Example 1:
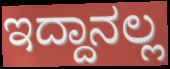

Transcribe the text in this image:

ಇದ್ದಾನಲ್ಲ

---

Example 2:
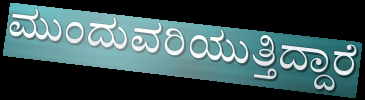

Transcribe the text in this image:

ಮುಂದುವರಿಯುತ್ತಿದ್ದಾರೆ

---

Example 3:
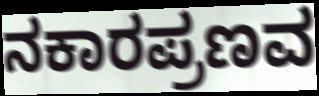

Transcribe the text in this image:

ನಕಾರಪ್ರಣವ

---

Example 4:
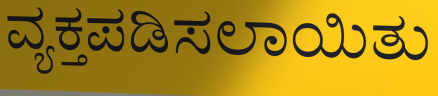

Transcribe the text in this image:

ವ್ಯಕ್ತಪಡಿಸಲಾಯಿತು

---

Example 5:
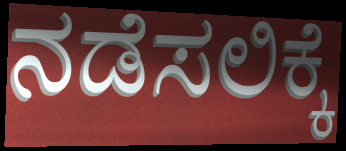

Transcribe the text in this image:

ನಡೆಸಲಿಕ್ಕೆ